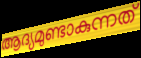
ആദ്യമുണ്ടാകുന്നത്